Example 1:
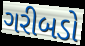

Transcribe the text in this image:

ગરીબડો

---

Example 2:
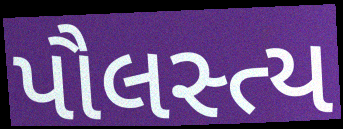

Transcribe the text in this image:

પૌલસ્ત્ય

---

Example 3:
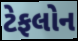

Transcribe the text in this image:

ટેફલોન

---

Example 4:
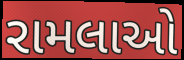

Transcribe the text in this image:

રામલાઓ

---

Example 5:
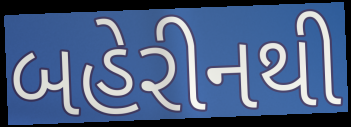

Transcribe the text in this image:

બહેરીનથી